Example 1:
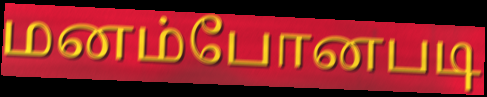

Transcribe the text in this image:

மனம்போனபடி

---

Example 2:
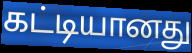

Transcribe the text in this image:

கட்டியானது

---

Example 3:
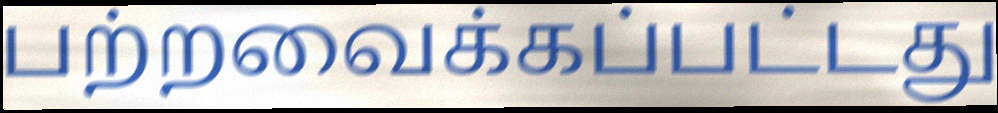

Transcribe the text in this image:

பற்றவைக்கப்பட்டது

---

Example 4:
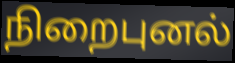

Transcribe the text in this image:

நிறைபுனல்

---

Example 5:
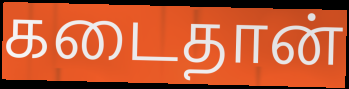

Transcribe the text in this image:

கடைதான்